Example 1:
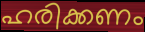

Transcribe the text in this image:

ഹരിക്കണം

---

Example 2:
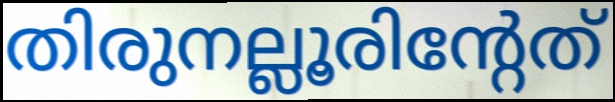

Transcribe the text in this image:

തിരുനല്ലൂരിന്റേത്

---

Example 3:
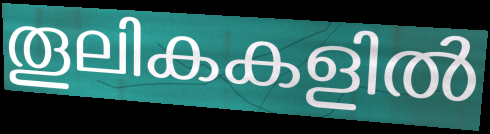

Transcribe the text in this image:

തൂലികകളിൽ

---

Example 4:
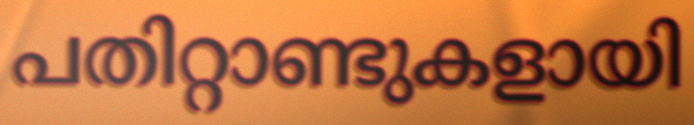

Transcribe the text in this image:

പതിറ്റാണ്ടുകളായി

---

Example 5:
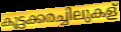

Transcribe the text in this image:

കൂട്ടക്കരച്ചിലുകള്